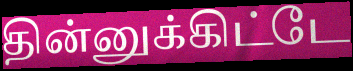
தின்னுக்கிட்டே